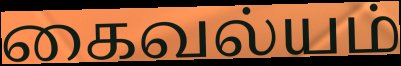
கைவல்யம்